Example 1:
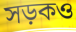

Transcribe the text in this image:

সড়কও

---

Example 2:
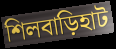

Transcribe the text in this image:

শিলবাড়িহাট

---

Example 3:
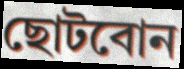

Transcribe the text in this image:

ছোটবোন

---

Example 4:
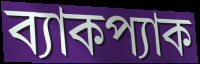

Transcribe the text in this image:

ব্যাকপ্যাক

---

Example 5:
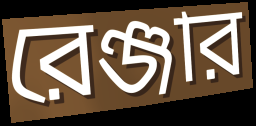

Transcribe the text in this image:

রেঞ্জার